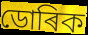
ডোৰিক